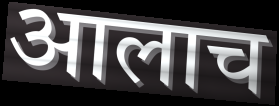
आलाच